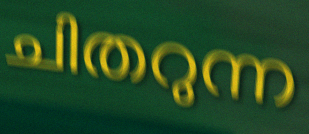
ചിതറുന്ന